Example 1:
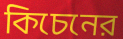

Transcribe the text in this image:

কিচেনের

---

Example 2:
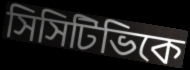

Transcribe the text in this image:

সিসিটিভিকে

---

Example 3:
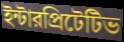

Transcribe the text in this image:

ইন্টারপ্রিটেটিভ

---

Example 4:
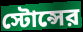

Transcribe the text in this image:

স্টোন্সের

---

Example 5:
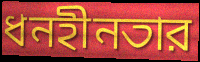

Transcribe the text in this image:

ধনহীনতার